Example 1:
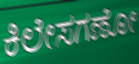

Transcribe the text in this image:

ಕಿಲೇಸಗಣೋ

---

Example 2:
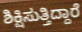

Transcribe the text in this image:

ಶಿಕ್ಷಿಸುತ್ತಿದ್ದಾರೆ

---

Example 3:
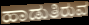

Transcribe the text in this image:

ಹಾಡುತಿರುವ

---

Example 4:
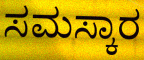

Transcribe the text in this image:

ಸಮಸ್ಕಾರ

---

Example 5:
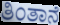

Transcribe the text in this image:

ತಿಂತಾನೆ